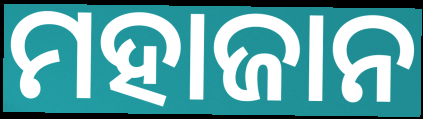
ମହାଜାନ